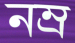
নম্ৰ